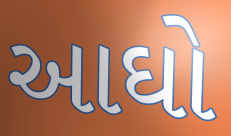
આઘો